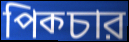
পিক্চার